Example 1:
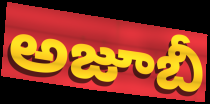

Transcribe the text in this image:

అజూబీ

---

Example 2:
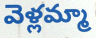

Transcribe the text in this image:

వెళ్లమ్మా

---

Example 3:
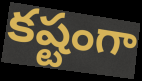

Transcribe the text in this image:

కష్టంగా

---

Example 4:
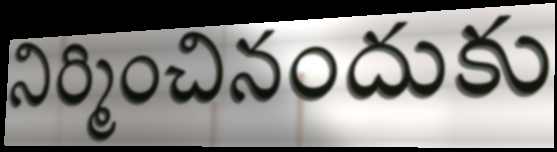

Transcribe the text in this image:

నిర్మించినందుకు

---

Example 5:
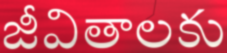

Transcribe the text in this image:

జీవితాలకు